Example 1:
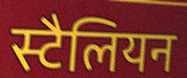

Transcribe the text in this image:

स्टैलियन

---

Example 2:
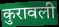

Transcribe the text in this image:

कुरावली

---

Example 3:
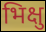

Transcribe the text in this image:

भिक्षु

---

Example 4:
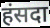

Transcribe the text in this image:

हंसदा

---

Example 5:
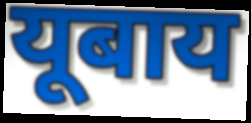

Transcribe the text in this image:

यूबाय